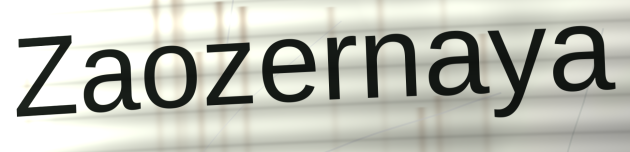
Zaozernaya